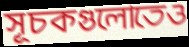
সূচকগুলোতেও